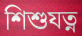
শিশুযত্ন